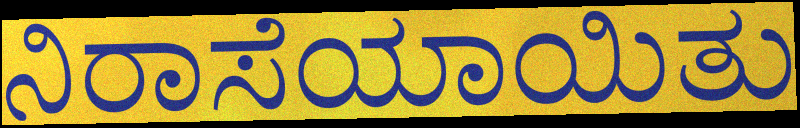
ನಿರಾಸೆಯಾಯಿತು